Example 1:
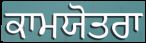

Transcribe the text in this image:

ਕਾਮਯੋਤਰਾ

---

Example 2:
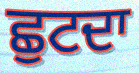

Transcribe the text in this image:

ਛੁਟਦਾ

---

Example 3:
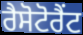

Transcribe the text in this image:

ਰੈਸੋਟੋਰੈਂਟ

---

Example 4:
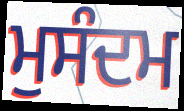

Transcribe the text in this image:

ਮੁਸੰਦਮ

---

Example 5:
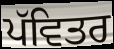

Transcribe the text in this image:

ਪੱਵਿਤਰ